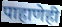
पाहाणेही